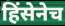
हिंसेनेच